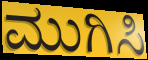
ಮುಗಿಸಿ